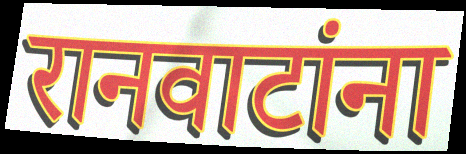
रानवाटांना